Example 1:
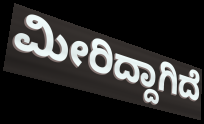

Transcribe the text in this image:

ಮೀರಿದ್ದಾಗಿದೆ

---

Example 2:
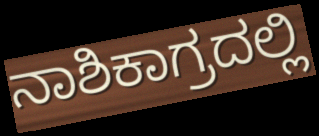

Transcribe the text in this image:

ನಾಶಿಕಾಗ್ರದಲ್ಲಿ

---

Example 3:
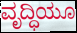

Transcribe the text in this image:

ವೃದ್ಧಿಯೂ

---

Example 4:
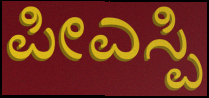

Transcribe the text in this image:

ಪೀಎಸ್ಪಿ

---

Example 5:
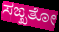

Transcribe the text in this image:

ಸಙ್ಖತೋ